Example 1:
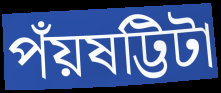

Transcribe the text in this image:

পঁয়ষট্টিটা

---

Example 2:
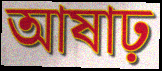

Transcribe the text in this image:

আষাঢ়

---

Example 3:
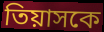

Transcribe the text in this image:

তিয়াসকে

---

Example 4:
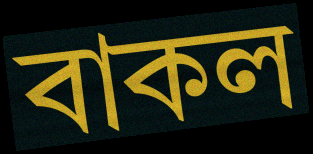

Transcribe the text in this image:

বাকল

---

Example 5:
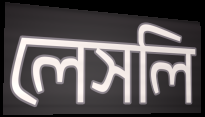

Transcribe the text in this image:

লেসলি